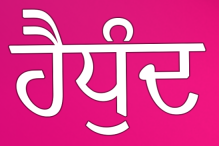
ਹੈਧੁੰਦ